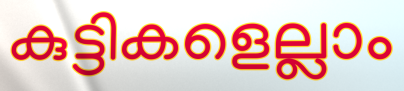
കുട്ടികളെല്ലാം